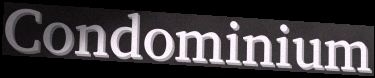
Condominium